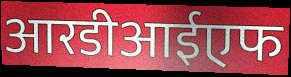
आरडीआईएफ